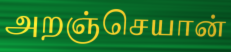
அறஞ்செயான்